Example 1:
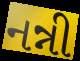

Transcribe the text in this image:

નન્ની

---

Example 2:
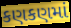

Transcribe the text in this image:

કણકણમાં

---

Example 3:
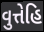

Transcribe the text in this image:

વુત્તેહિ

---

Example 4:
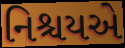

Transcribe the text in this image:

નિશ્ચયએ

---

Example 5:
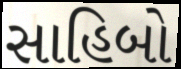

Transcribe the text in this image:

સાહિબો